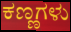
ಕಣ್ಣಗಳು